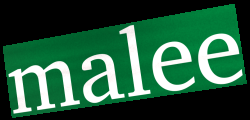
malee